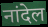
नांदेल